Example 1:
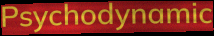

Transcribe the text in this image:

Psychodynamic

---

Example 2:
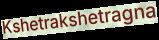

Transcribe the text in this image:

Kshetrakshetragna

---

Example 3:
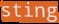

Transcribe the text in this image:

sting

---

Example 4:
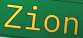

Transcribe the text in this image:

Zion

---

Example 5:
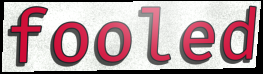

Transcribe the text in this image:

fooled